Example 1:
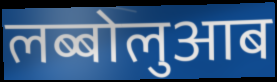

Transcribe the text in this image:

लब्बोलुआब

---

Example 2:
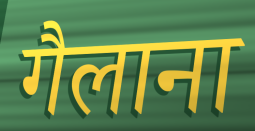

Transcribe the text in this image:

गैलाना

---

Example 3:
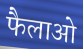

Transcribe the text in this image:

फैलाओ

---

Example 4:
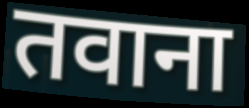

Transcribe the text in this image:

तवाना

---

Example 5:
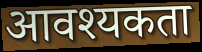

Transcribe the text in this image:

आवश्यकता